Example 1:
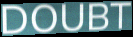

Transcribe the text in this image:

DOUBT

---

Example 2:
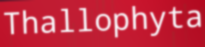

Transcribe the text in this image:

Thallophyta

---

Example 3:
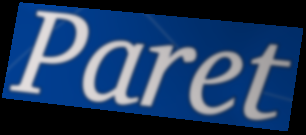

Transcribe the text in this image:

Paret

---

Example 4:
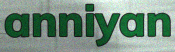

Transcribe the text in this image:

anniyan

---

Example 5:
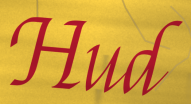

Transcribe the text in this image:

Hud